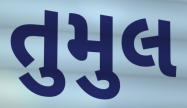
તુમુલ